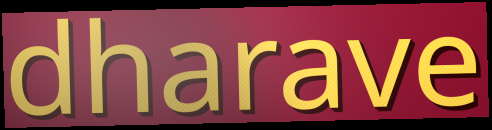
dharave